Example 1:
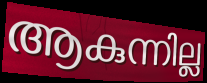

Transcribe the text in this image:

ആകുന്നില്ല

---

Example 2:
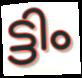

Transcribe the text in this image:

ട്ടിം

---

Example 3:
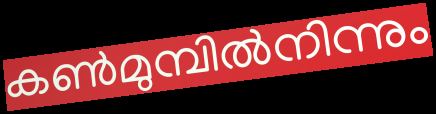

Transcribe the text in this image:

കൺമുമ്പിൽനിന്നും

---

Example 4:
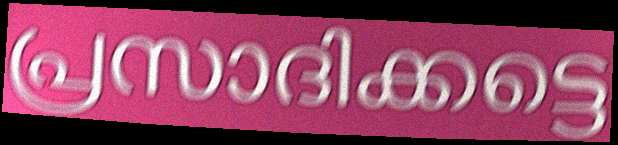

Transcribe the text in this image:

പ്രസാദിക്കട്ടെ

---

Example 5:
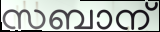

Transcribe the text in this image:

സബാന്